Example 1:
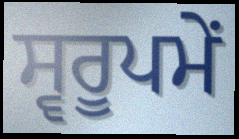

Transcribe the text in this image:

ਸ੍ਵਰੂਪਮੇਂ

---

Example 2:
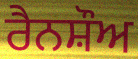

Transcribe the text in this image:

ਰੈਨਸ਼ੌਅ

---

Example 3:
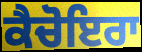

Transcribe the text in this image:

ਕੈਚੋਇਰਾ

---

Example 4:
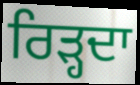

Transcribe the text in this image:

ਰਿੜ੍ਹਦਾ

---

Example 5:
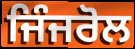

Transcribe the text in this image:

ਜਿੰਜਰੋਲ